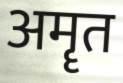
अमॄत